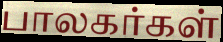
பாலகர்கள்